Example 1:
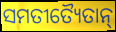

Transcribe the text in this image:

ସମତୀତ୍ୟୈତାନ୍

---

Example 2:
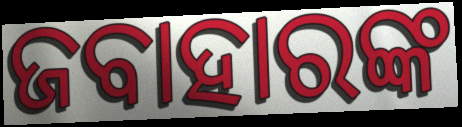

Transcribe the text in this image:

ଜବାହାରଙ୍କ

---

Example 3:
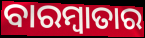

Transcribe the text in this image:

ବାରମ୍ବାତାର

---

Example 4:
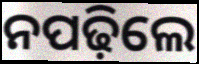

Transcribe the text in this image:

ନପଢ଼ିଲେ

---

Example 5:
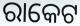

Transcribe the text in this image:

ରାକେଟ